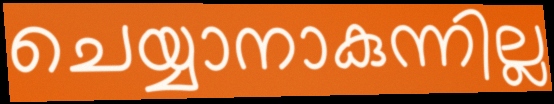
ചെയ്യാനാകുന്നില്ല